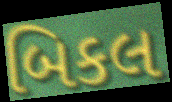
બિકલ